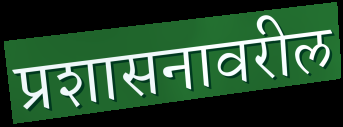
प्रशासनावरील